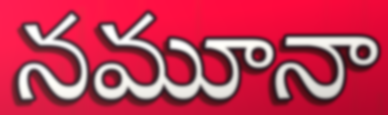
నమూనా